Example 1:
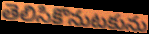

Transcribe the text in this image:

తెలిసికొనుటకును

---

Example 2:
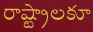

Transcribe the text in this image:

రాష్ట్రాలకూ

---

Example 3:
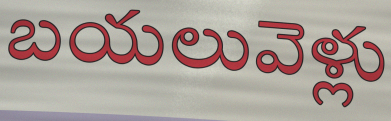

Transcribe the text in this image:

బయలువెళ్లు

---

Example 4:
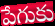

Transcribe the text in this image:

పేగుకు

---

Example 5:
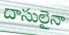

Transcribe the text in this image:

దాసులైనా